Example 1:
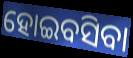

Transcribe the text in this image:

ହୋଇବସିବା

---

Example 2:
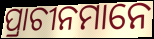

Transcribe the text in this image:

ପ୍ରାଚୀନମାନେ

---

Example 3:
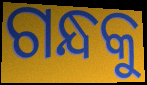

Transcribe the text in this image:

ଗନ୍ଧକୁ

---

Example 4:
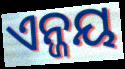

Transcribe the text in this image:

ଏନ୍ଜୟ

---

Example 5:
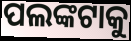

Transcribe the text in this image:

ପଲଙ୍କଟାକୁ